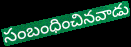
సంబంధించినవాడు